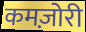
कमज़ोरी